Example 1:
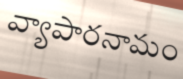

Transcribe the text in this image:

వ్యాపారనామం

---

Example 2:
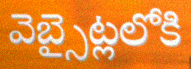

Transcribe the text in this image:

వెబ్సైట్లలోకి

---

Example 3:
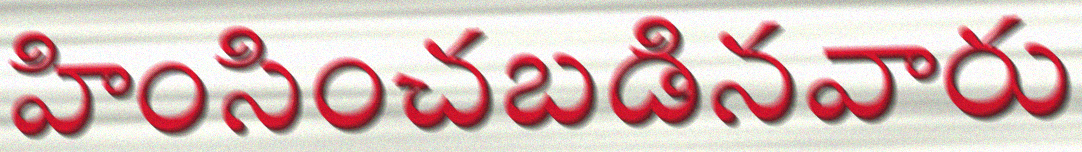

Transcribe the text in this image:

హింసించబడినవారు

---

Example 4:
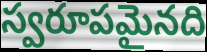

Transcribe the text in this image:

స్వరూపమైనది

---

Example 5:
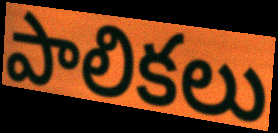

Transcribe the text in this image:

పాలికలు